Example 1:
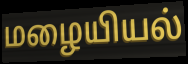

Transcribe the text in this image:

மழையியல்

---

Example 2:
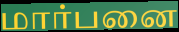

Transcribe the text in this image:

மார்பனை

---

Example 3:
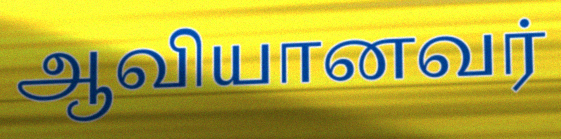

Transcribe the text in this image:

ஆவியானவர்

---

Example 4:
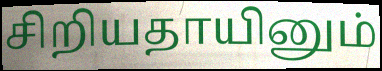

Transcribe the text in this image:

சிறியதாயினும்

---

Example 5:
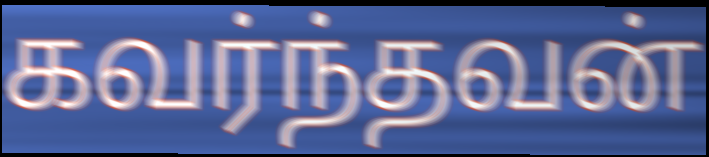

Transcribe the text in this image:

கவர்ந்தவன்